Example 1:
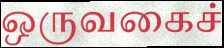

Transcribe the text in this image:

ஒருவகைச்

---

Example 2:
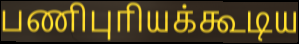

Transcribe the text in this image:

பணிபுரியக்கூடிய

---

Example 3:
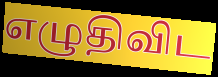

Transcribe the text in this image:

எழுதிவிட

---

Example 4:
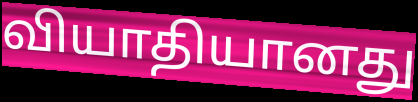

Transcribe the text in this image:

வியாதியானது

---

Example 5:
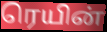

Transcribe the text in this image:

ரெயின்